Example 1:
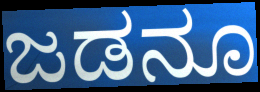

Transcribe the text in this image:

ಜಡನೂ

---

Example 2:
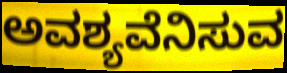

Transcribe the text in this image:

ಅವಶ್ಯವೆನಿಸುವ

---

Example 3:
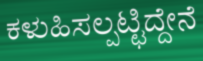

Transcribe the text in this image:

ಕಳುಹಿಸಲ್ಪಟ್ಟಿದ್ದೇನೆ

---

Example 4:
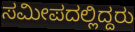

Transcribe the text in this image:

ಸಮೀಪದಲ್ಲಿದ್ದರು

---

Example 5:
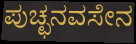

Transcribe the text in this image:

ಪುಚ್ಛನವಸೇನ